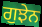
ਗੁਝੇਨ